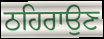
ਠਹਿਰਾਉਣ